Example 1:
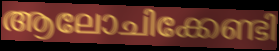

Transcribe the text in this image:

ആലോചിക്കേണ്ടി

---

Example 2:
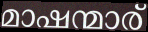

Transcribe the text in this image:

മാഷന്മാര്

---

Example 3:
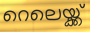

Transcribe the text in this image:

റെലെയ്ക്ക്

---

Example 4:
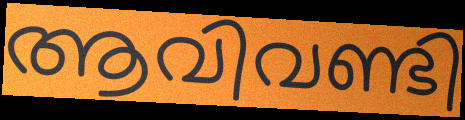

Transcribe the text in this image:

ആവിവണ്ടി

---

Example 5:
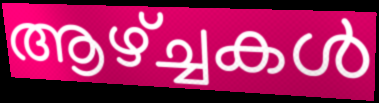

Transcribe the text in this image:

ആഴ്ച്ചകൾ